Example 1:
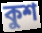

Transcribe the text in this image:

কুশ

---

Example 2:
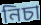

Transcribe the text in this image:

নিচা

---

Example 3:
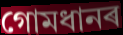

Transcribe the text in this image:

গোমধানৰ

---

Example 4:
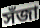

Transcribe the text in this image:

সঁজা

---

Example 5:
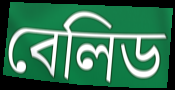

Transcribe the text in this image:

বেলিড